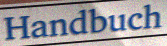
Handbuch